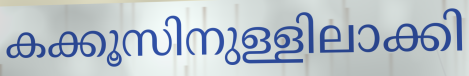
കക്കൂസിനുള്ളിലാക്കി